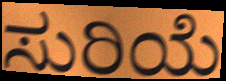
ಸುರಿಯೆ